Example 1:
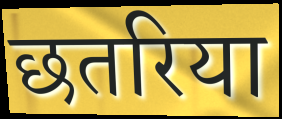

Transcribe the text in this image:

छतरिया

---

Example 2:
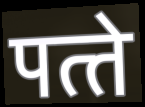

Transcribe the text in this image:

पत्‍ते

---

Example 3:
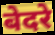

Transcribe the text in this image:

बेदरे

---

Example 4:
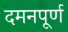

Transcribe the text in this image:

दमनपूर्ण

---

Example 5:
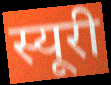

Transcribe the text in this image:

स्यूरी